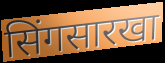
सिंगसारखा